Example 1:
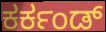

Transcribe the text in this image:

ಕರ್ಕಂಡ್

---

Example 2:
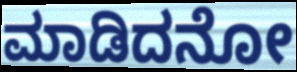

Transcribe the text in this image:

ಮಾಡಿದನೋ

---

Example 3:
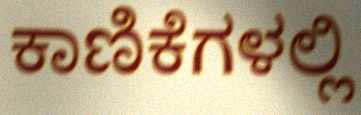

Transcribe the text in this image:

ಕಾಣಿಕೆಗಳಲ್ಲಿ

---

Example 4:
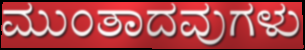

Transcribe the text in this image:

ಮುಂತಾದವುಗಳು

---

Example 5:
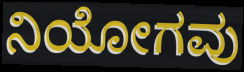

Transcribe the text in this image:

ನಿಯೋಗವು